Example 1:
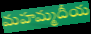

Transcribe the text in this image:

మహమ్మదీయ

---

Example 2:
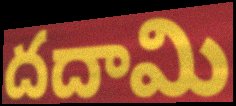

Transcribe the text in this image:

దదామి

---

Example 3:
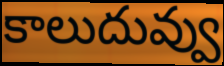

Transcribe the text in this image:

కాలుదువ్వు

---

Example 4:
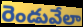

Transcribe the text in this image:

రెండువేలా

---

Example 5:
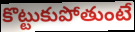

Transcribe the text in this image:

కొట్టుకుపోతుంటే